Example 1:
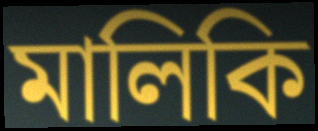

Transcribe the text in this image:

মালিকি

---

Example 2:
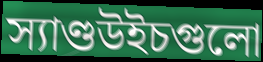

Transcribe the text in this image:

স্যাণ্ডউইচগুলো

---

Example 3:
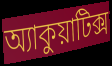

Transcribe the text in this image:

অ্যাকুয়াটিক্স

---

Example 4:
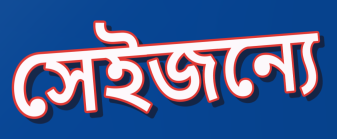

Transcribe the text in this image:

সেইজন্যে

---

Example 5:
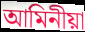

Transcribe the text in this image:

আমিনীয়া